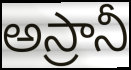
అస్రానీ